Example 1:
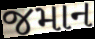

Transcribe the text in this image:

જમાન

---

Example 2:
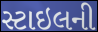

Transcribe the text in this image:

સ્ટાઇલની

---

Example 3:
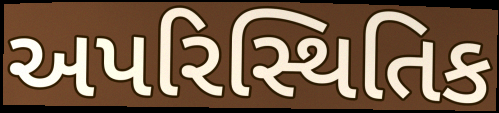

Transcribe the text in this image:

અપરિસ્થિતિક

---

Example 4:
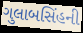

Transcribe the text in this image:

ગુલાબસિંહની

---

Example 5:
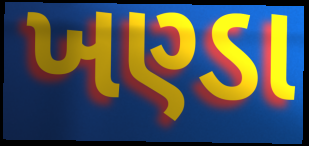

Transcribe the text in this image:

ખણ્ડા